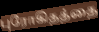
புரோகிதத்தை